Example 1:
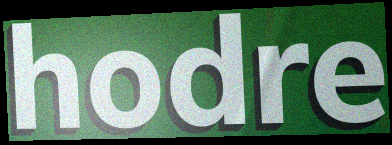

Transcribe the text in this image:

hodre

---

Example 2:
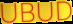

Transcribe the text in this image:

UBUD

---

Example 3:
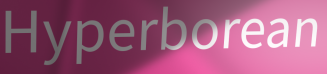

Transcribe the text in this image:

Hyperborean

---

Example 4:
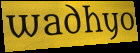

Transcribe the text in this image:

wadhyo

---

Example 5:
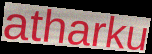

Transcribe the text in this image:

atharku